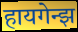
हायगेन्झ